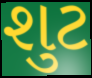
શુટ